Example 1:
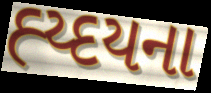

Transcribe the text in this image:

હ્ય્દયના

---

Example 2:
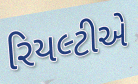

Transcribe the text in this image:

રિયલ્ટીએ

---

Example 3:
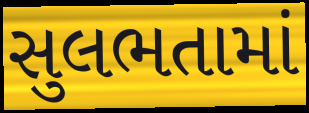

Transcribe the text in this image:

સુલભતામાં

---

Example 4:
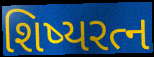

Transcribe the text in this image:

શિષ્યરત્ન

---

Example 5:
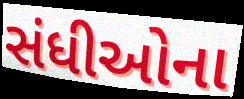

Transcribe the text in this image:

સંધીઓના